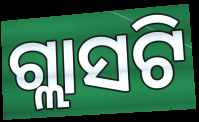
ଗ୍ଲାସଟି